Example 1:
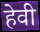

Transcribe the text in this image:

हेवी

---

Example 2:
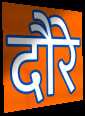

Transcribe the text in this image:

दौरे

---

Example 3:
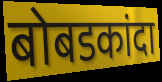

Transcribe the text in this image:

बोबडकांदा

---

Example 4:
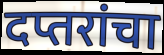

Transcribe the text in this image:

दप्तरांचा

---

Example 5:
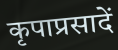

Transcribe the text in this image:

कृपाप्रसादें